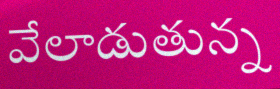
వేలాడుతున్న